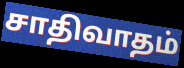
சாதிவாதம்